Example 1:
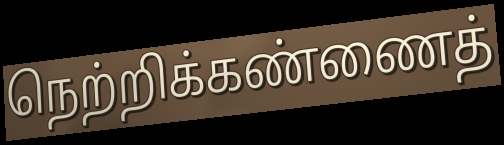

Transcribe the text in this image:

நெற்றிக்கண்ணைத்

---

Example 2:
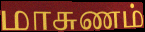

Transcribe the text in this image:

மாசுணம்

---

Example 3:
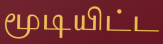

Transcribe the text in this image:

மூடியிட்ட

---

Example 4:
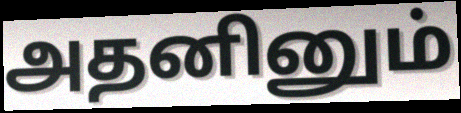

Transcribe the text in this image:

அதனினும்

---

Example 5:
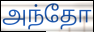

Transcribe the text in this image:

அந்தோ